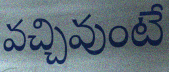
వచ్చివుంటే